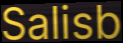
Salisb